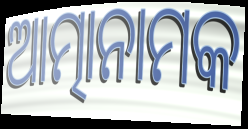
ଆତ୍ମାନାମକ